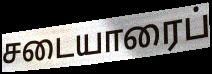
சடையாரைப்